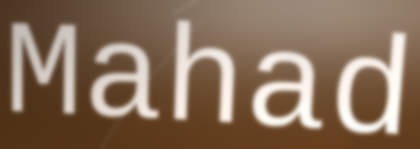
Mahad